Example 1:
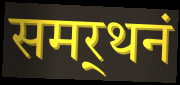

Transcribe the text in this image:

समर्थनं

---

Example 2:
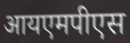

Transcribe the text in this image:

आयएमपीएस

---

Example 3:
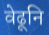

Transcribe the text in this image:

वेढूनि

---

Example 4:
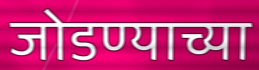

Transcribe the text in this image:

जोडण्याच्या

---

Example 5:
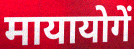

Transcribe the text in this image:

मायायोगें